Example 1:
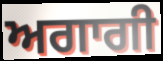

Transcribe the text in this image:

ਅਗਾਗੀ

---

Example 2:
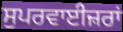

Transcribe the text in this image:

ਸੁਪਰਵਾਈਜ਼ਰਾਂ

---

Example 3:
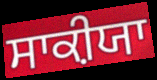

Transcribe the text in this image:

ਸਾਕ਼ੀਯਾ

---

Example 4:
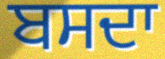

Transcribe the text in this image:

ਬਸਦਾ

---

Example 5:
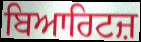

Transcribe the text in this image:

ਬਿਆਰਿਟਜ਼